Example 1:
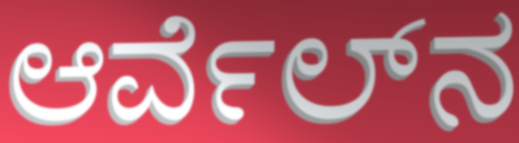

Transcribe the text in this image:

ಆರ್ವೆಲ್‍ನ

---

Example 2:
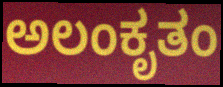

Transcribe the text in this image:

ಅಲಂಕೃತಂ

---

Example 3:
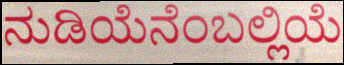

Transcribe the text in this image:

ನುಡಿಯೆನೆಂಬಲ್ಲಿಯೆ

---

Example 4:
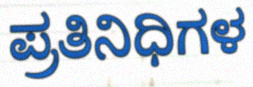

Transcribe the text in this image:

ಪ್ರತಿನಿಧಿಗಳ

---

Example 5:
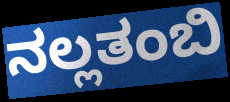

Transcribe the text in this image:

ನಲ್ಲತಂಬಿ